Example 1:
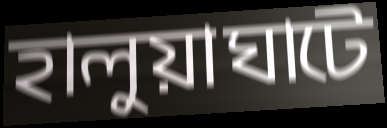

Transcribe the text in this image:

হালুয়াঘাটে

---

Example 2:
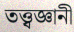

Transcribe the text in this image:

তত্ত্বজ্ঞানী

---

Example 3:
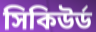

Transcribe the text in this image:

সিকিউর্ড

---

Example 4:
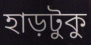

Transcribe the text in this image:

হাড়টুকু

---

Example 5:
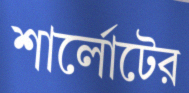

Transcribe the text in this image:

শার্লোটের